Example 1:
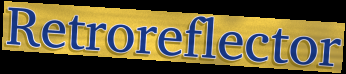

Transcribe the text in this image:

Retroreflector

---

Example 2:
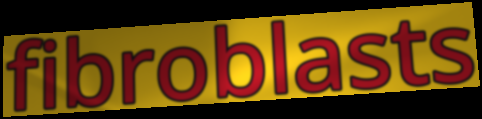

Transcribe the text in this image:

fibroblasts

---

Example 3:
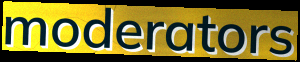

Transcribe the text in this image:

moderators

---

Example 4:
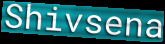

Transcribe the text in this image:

Shivsena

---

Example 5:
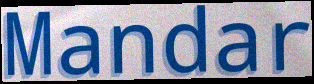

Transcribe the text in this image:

Mandar